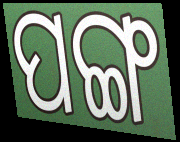
ପଙ୍ଗ